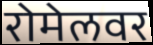
रोमेलवर